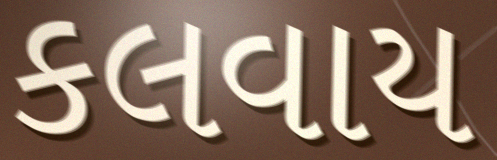
કલવાય